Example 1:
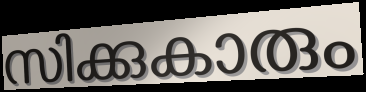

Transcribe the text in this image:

സിക്കുകാരും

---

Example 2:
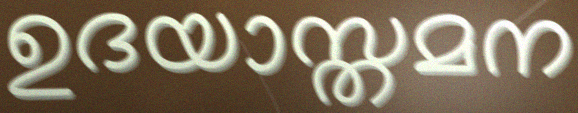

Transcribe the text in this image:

ഉദയാസ്തമന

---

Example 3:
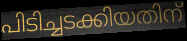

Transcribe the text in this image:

പിടിച്ചടക്കിയതിന്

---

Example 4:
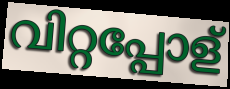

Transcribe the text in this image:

വിറ്റപ്പോള്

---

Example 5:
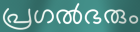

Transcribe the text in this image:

പ്രഗൽഭരും